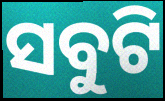
ସବୁଟି